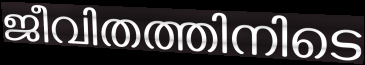
ജീവിതത്തിനിടെ